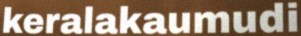
keralakaumudi